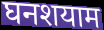
घनशयाम